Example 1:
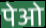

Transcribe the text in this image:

पेओ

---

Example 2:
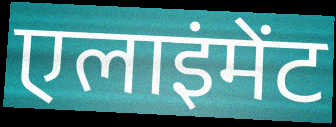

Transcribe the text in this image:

एलाइंमेंट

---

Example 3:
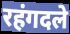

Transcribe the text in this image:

रहंगदले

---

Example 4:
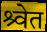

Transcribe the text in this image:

श्र्वेत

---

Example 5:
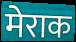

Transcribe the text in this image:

मेराक